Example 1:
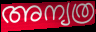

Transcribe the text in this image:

അന്യത്ര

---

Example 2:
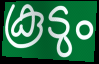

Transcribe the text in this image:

കൂടും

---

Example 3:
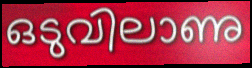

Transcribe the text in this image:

ഒടുവിലാണു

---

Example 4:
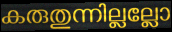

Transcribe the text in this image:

കരുതുന്നില്ലല്ലോ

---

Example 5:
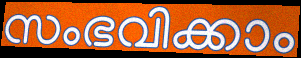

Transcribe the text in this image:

സംഭവിക്കാം